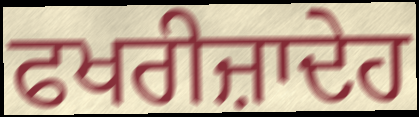
ਫਖਰੀਜ਼ਾਦੇਹ